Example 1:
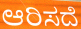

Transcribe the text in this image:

ಆರಿಸದೆ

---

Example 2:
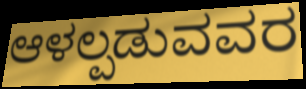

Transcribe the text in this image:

ಆಳಲ್ಪಡುವವರ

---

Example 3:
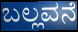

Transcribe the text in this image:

ಬಲ್ಲವನೆ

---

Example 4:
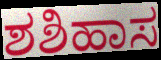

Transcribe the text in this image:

ಶಶಿಹಾಸ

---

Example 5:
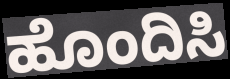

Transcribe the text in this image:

ಹೊಂದಿಸಿ